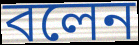
বলেন